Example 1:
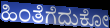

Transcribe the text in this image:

ಹಿಂತೆಗೆದುಕೋ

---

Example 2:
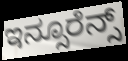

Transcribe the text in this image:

ಇನ್ಸೂರೆನ್ಸ್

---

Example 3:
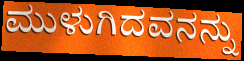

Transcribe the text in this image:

ಮುಳುಗಿದವನನ್ನು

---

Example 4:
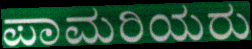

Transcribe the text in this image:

ಪಾಮರಿಯರು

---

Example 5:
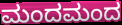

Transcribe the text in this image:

ಮಂದಮಂದ